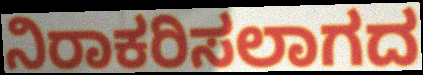
ನಿರಾಕರಿಸಲಾಗದ